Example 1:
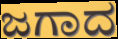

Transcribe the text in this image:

ಜಗಾದ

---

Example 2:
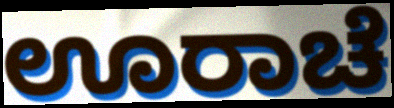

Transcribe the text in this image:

ಊರಾಚೆ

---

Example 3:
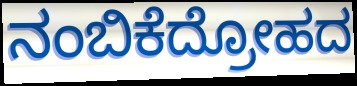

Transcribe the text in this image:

ನಂಬಿಕೆದ್ರೋಹದ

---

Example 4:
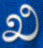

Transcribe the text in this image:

ಖಿ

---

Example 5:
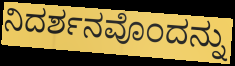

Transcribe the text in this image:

ನಿದರ್ಶನವೊಂದನ್ನು